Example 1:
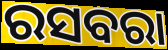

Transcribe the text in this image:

ରସବରା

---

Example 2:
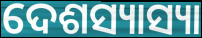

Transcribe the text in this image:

ଦେଶସ୍ୟାସ୍ୟା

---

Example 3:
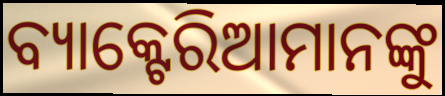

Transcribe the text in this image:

ବ୍ୟାକ୍ଟେରିଆମାନଙ୍କୁ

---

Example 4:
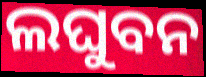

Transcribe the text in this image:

ଲଘୁବନ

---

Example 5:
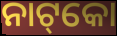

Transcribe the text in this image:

ନାଟ୍‌କୋ